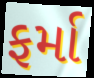
ફર્મા